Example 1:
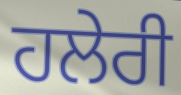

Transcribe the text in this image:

ਹਲੇਰੀ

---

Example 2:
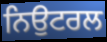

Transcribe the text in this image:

ਨਿਉਟਰਲ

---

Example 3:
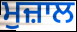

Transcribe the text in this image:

ਮੁਜ਼ਾਲ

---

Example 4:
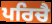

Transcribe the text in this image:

ਪਰਿਚੈ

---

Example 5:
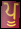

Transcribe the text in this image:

ਪੂ